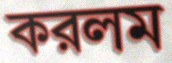
করলম